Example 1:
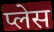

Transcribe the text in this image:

प्लेस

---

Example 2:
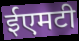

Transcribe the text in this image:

ईएमटी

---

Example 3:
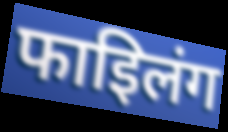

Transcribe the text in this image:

फाइिलंग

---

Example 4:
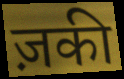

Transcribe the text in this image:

ज़की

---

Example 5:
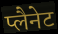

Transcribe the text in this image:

प्लैनेट